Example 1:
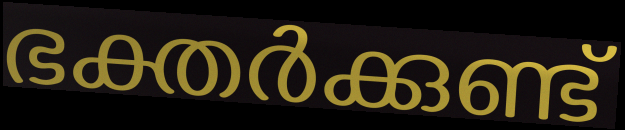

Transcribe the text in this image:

ഭക്തർക്കുണ്ട്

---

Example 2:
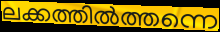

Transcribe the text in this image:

ലക്കത്തിൽത്തന്നെ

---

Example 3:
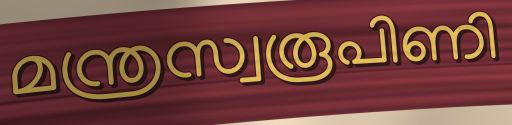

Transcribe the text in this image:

മന്ത്രസ്വരൂപിണി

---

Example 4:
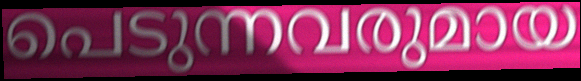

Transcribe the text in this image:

പെടുന്നവരുമായ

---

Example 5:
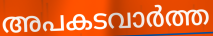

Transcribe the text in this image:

അപകടവാർത്ത